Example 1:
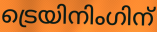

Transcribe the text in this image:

ട്രെയിനിംഗിന്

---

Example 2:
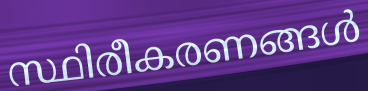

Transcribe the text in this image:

സ്ഥിരീകരണങ്ങൾ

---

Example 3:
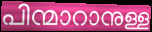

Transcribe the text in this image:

പിന്മാറാനുള്ള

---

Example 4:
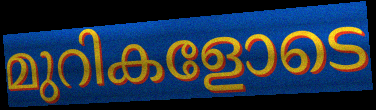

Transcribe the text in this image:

മുറികളോടെ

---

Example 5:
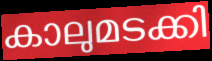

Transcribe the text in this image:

കാലുമടക്കി